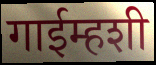
गाईम्हशी